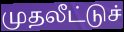
முதலீட்டுச்